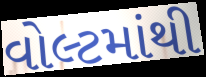
વોલ્ટમાંથી